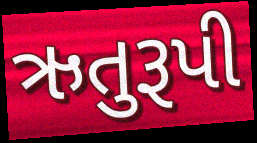
ઋતુરૂપી